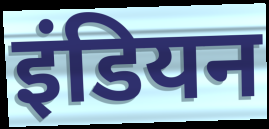
इंडियन